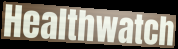
Healthwatch